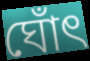
ঘোঁৎ